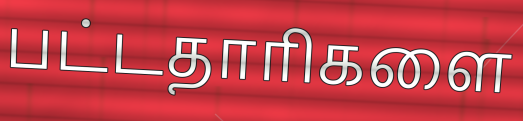
பட்டதாரிகளை